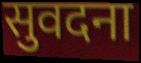
सुवदना